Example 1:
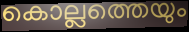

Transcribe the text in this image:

കൊല്ലത്തെയും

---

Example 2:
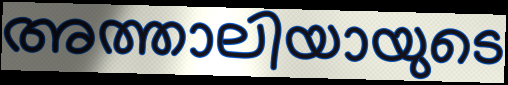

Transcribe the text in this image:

അത്താലിയായുടെ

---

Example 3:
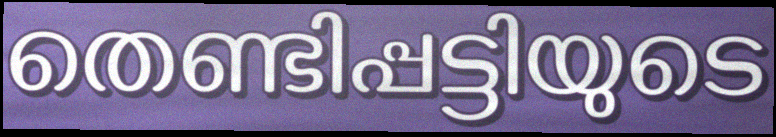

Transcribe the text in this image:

തെണ്ടിപ്പട്ടിയുടെ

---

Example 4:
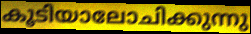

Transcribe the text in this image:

കൂടിയാലോചിക്കുന്നു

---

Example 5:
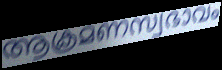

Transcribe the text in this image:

ആക്രമണസ്വഭാവം